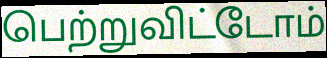
பெற்றுவிட்டோம்